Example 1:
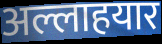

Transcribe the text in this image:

अल्लाहयार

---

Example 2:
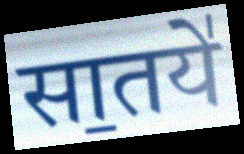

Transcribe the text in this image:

सा॒तये॑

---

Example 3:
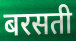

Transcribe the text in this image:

बरसती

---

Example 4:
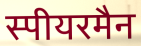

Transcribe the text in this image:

स्पीयरमैन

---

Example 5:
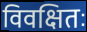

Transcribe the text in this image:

विवक्षितः